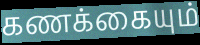
கணக்கையும்